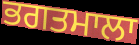
ਭਗਤਮਾਲਾ